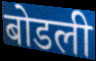
बोडली